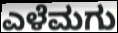
ಎಳೆಮಗು